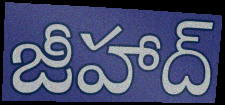
జీహాద్